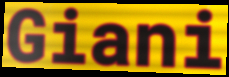
Giani